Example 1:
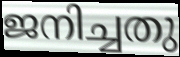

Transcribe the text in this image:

ജനിച്ചതു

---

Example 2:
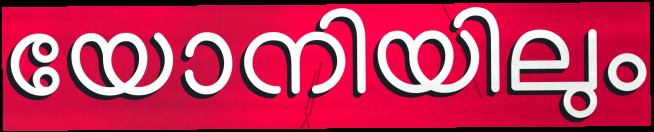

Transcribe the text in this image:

യോനിയിലും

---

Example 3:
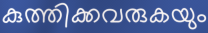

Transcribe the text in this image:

കുത്തിക്കവരുകയും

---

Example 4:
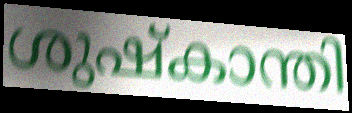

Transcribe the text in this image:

ശുഷ്കാന്തി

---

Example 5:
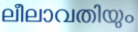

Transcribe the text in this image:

ലീലാവതിയും